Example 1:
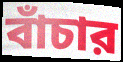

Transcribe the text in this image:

বাঁচার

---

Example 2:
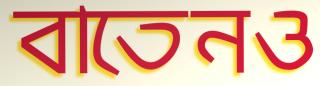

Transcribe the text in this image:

বাতেনও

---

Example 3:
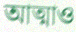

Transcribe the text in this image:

আত্মাও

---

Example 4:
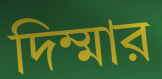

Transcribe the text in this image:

দিম্মার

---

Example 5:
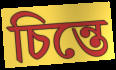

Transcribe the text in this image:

চিন্তে